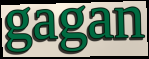
gagan